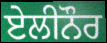
ਏਲੀਨੌਰ